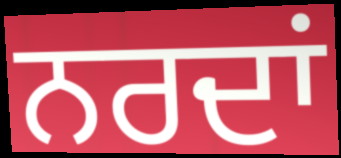
ਨਰਦਾਂ